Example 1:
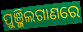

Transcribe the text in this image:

ପୁଞ୍ଜିଲଗାଣରେ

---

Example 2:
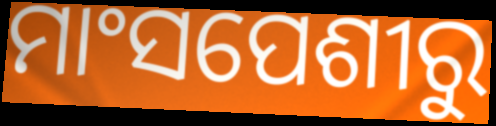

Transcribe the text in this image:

ମାଂସପେଶୀରୁ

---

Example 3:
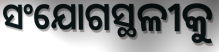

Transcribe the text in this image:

ସଂଯୋଗସ୍ଥଳୀକୁ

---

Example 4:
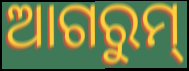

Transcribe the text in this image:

ଆଗରୁମ୍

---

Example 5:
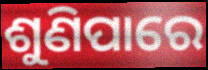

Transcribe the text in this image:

ଶୁଣିପାରେ